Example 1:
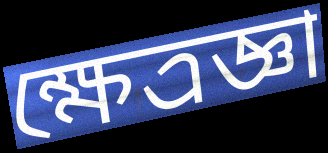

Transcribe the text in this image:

ক্ষেত্রজ্ঞা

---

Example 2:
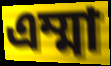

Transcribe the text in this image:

এম্মা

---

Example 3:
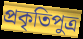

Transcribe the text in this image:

প্রকৃতিপুত্র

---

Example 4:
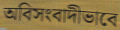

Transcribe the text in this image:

অবিসংবাদীভাবে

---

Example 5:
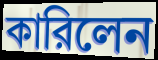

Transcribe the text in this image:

কারিলেন